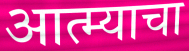
आत्म्याचा